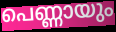
പെണ്ണായും